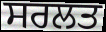
ਸਰਲਤ